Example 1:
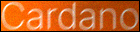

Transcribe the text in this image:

Cardano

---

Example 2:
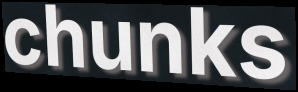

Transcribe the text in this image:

chunks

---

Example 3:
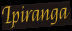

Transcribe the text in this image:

Ipiranga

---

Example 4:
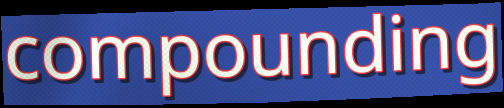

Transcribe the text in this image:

compounding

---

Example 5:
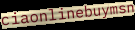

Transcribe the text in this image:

ciaonlinebuymsn